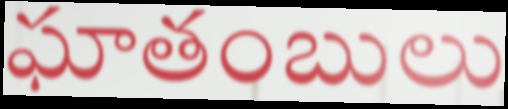
ఘాతంబులు